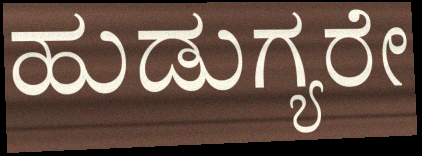
ಹುಡುಗ್ಯರೇ